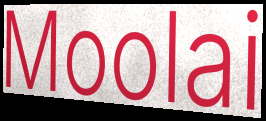
Moolai